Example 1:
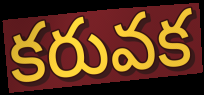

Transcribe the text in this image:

కరువక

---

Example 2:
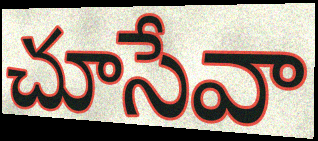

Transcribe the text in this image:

చూసేవా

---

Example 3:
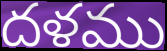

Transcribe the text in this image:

దళము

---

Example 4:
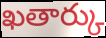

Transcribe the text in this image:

ఖతార్కు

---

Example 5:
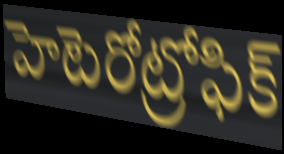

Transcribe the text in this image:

హెటెరోట్రోఫిక్